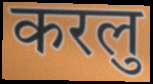
करलु